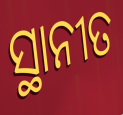
ସ୍ଥାନୀତ